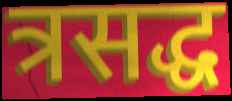
त्रसद्ध